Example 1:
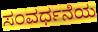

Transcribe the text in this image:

ಸಂವರ್ಧನೆಯ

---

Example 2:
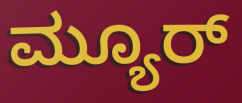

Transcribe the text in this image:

ಮ್ಯೂರ್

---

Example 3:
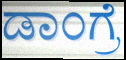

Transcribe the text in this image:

ಡಾಂಗ್ರೆ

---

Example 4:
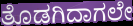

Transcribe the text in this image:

ತೊಡಗಿದಾಗಲೇ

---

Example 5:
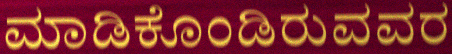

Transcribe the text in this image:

ಮಾಡಿಕೊಂಡಿರುವವರ